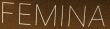
FEMINA